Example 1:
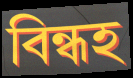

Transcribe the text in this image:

বিন্ধহ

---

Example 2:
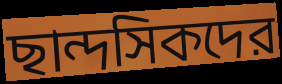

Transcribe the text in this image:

ছান্দসিকদের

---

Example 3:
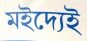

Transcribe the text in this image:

মইদ্যেই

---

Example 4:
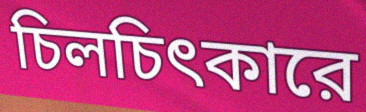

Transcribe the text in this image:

চিলচিৎকারে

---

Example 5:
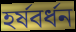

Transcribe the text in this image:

হর্ষবর্ধন